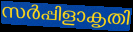
സർപ്പിളാകൃതി